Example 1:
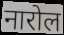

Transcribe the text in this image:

नारोल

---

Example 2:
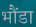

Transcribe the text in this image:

भौंडा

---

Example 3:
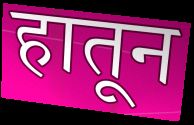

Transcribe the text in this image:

हातून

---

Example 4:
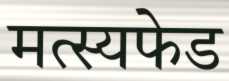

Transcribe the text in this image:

मत्स्यफेड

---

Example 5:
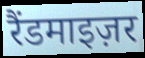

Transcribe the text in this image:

रैंडमाइज़र